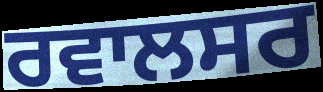
ਰਵਾਲਸਰ